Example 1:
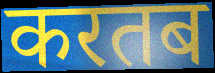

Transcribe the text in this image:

करतब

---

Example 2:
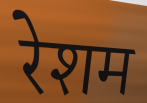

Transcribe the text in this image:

रेशम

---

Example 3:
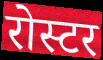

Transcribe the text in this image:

रोस्टर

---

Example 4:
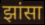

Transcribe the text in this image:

झांसा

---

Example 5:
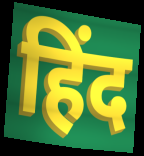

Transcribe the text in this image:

हिंद